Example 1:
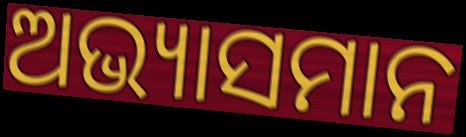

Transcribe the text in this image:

ଅଭ୍ୟାସମାନ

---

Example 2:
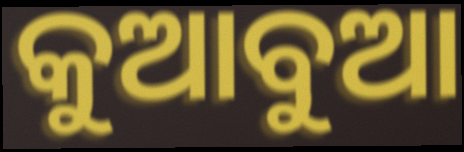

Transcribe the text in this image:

କୁଆବୁଆ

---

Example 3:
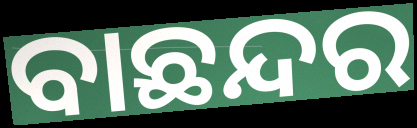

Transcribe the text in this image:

ବାଛନ୍ଦର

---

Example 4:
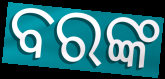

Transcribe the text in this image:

ବରଙ୍କ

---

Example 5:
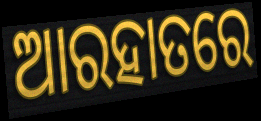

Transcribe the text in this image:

ଆରହାତରେ